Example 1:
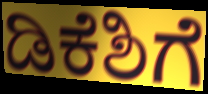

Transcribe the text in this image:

ಡಿಕೆಶಿಗೆ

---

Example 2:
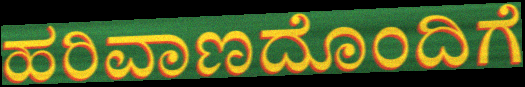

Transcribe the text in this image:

ಹರಿವಾಣದೊಂದಿಗೆ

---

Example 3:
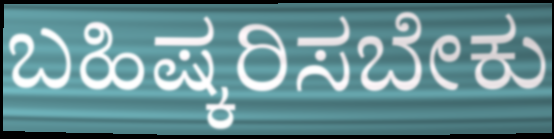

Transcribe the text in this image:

ಬಹಿಷ್ಕರಿಸಬೇಕು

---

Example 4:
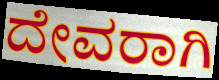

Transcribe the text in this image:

ದೇವರಾಗಿ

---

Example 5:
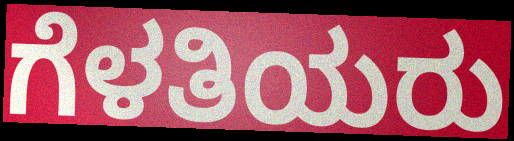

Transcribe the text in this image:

ಗೆಳತಿಯರು